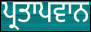
ਪ੍ਰਤਾਪਵਾਨ